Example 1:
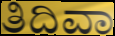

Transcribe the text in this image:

ತಿದಿವಾ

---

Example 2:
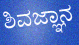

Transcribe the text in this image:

ಶಿವಜ್ಞಾನ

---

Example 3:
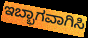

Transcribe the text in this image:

ಇಬ್ಭಾಗವಾಗಿಸಿ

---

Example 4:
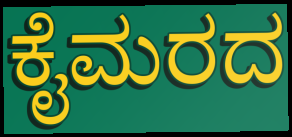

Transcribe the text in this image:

ಕೈಮರದ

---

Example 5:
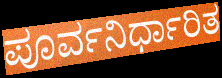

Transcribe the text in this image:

ಪೂರ್ವನಿರ್ಧಾರಿತ